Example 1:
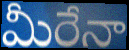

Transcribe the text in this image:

మీరేనా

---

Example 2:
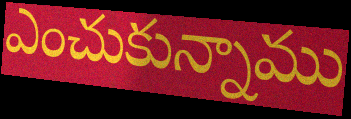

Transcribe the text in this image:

ఎంచుకున్నాము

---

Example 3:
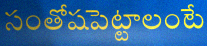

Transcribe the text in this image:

సంతోషపెట్టాలంటే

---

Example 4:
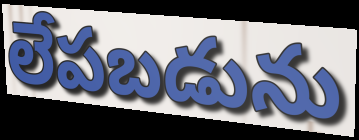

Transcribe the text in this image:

లేపబడును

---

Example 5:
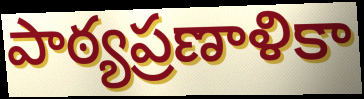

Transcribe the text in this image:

పాఠ్యప్రణాళికా